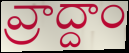
వ్రాద్దాం